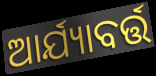
ଆର୍ଯ୍ୟାବର୍ତ୍ତ